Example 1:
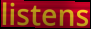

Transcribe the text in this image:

listens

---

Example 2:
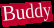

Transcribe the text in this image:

Buddy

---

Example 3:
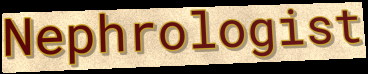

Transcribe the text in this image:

Nephrologist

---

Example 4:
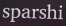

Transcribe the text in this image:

sparshi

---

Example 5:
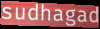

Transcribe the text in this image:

sudhagad